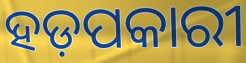
ହଡ଼ପକାରୀ